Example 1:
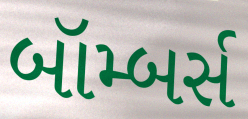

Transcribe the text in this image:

બૉમ્બર્સ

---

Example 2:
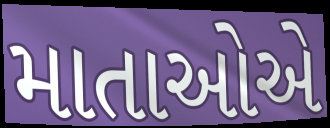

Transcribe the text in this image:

માતાઓએ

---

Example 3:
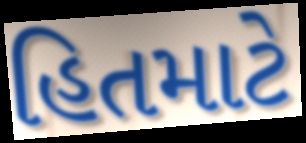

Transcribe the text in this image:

હિતમાટે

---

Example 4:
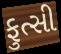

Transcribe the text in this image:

ફુત્સી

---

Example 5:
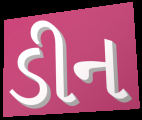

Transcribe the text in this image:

ડીન